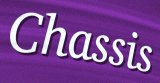
Chassis